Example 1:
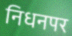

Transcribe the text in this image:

निधनपर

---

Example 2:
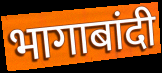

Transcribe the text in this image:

भागाबांदी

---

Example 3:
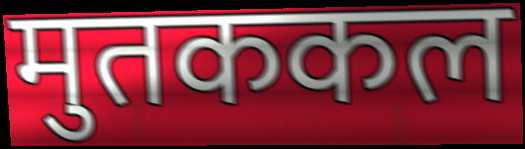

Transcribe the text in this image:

मुतककल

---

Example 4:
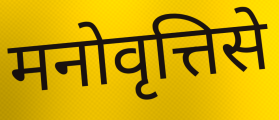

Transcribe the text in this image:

मनोवृत्तिसे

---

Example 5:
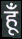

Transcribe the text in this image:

हूँं